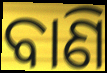
ବାଣି